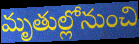
మృతుల్లోనుంచి